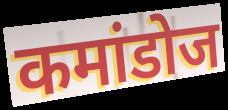
कमांडोज